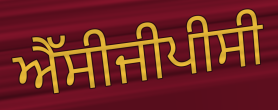
ਐੱਸੀਜੀਪੀਸੀ